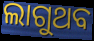
ଲାଗୁଥବ